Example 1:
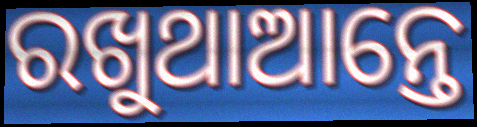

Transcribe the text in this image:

ରଖୁଥାଆନ୍ତେ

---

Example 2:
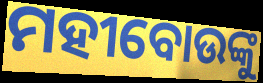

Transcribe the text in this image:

ମହୀବୋଉଙ୍କୁ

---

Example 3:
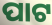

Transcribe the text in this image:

ପାଟ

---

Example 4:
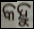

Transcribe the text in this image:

କହୁ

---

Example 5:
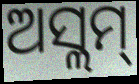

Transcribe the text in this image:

ଅସ୍ଲମ୍